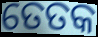
ତେତକ